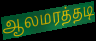
ஆலமரத்தடி